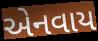
એનવાય